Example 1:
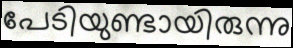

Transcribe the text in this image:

പേടിയുണ്ടായിരുന്നു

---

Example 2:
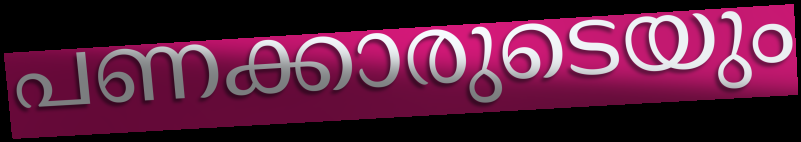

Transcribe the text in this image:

പണക്കാരുടെയും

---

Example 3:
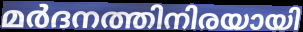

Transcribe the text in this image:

മർദനത്തിനിരയായി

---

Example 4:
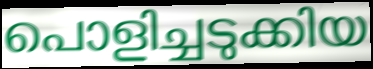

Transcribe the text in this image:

പൊളിച്ചടുക്കിയ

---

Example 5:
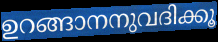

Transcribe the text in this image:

ഉറങ്ങാനനുവദിക്കൂ